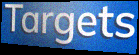
Targets